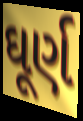
ઘૂર્ણ